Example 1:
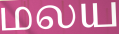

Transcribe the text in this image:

மலய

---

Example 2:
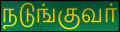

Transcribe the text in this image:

நடுங்குவர்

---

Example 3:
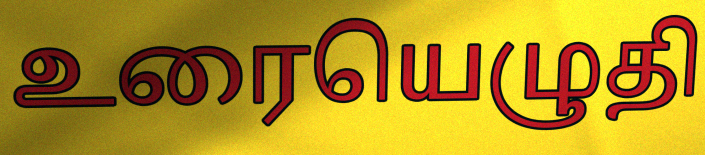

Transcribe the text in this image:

உரையெழுதி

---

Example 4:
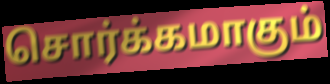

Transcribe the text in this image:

சொர்க்கமாகும்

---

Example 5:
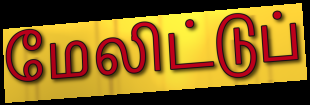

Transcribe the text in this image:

மேலிட்டுப்